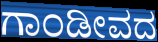
ಗಾಂಡೀವದ